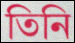
তিনি